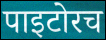
पाइटोरच